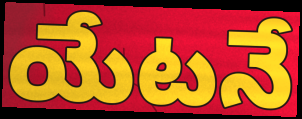
యేటనే